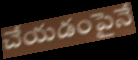
చేయడంపైనే